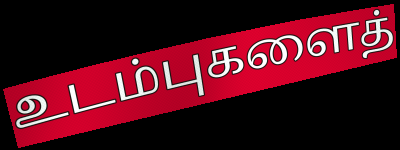
உடம்புகளைத்